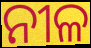
ନୀଳ